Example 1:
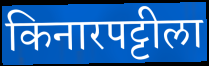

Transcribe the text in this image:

किनारपट्टीला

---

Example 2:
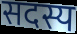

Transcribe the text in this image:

सदस्‍य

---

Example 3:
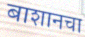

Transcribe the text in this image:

बाशानचा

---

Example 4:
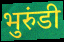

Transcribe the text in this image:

भुरुंडी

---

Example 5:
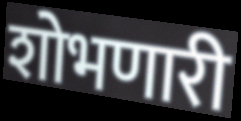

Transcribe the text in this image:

शोभणारी